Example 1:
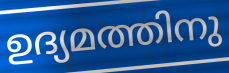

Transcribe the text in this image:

ഉദ്യമത്തിനു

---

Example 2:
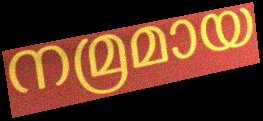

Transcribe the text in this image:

നമ്രമായ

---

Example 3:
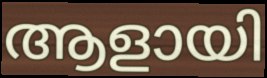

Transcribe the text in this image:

ആളായി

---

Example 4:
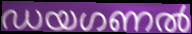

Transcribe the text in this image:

ഡയഗണൽ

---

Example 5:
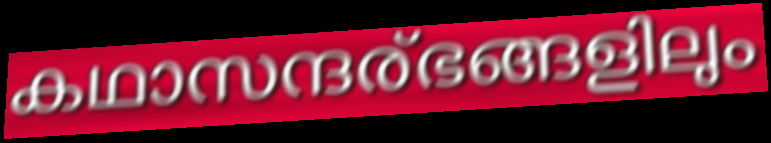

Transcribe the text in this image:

കഥാസന്ദര്ഭങ്ങളിലും